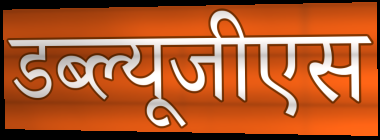
डब्ल्यूजीएस